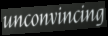
unconvincing